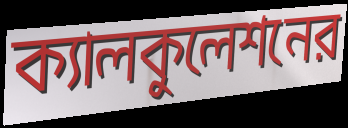
ক্যালকুলেশনের